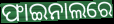
ଫାଇନାଲରେ